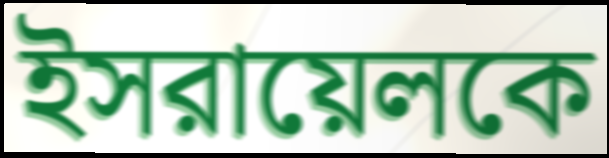
ইসরায়েলকে